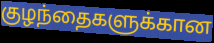
குழந்தைகளுக்கான